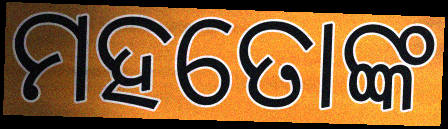
ମହତୋଙ୍କ